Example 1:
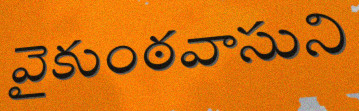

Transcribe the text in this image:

వైకుంఠవాసుని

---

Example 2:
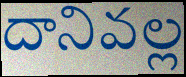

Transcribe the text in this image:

దానివల్ల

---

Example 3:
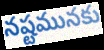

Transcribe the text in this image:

నష్టమునకు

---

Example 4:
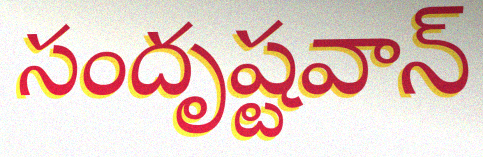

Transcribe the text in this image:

సందృష్టవాన్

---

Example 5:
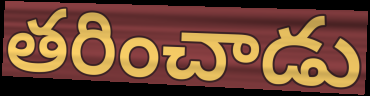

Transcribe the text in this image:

తరించాడు